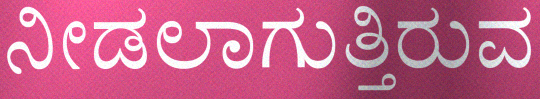
ನೀಡಲಾಗುತ್ತಿರುವ